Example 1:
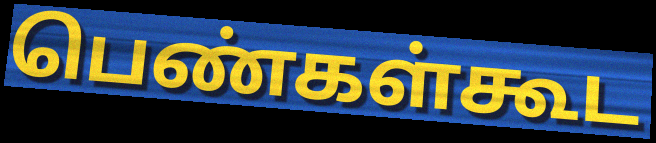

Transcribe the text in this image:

பெண்கள்கூட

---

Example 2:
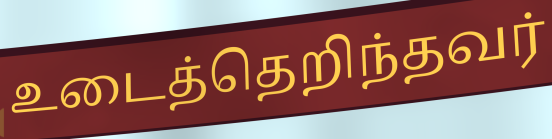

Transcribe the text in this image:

உடைத்தெறிந்தவர்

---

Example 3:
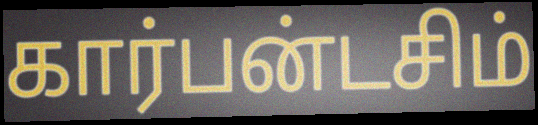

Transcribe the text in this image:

கார்பன்டசிம்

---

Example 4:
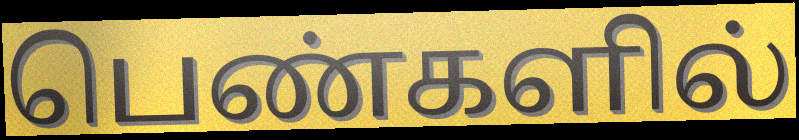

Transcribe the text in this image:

பெண்களில்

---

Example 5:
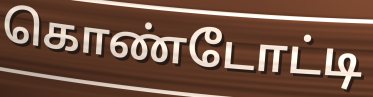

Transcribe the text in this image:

கொண்டோட்டி